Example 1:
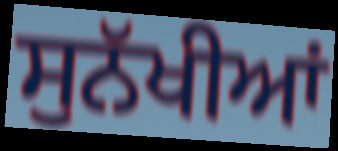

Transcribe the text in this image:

ਸੁਨੱਖੀਆਂ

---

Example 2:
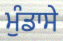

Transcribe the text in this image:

ਮੁੰਡਾਸੇ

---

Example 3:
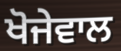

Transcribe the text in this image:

ਖੋਜੇਵਾਲ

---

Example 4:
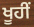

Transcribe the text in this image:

ਖੂਹੀਂ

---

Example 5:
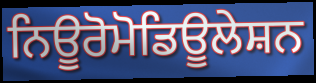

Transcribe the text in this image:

ਨਿਊਰੋਮੋਡਿਊਲੇਸ਼ਨ